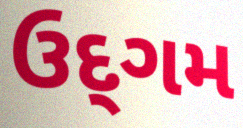
ઉદ્‌ગમ